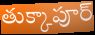
తుక్కాపూర్